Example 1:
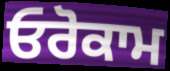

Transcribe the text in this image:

ਓਰੋਕਾਮ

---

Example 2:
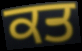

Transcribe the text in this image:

ਕਤ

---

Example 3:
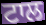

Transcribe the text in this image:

ਟਾਲ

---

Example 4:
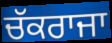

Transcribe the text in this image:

ਚੱਕਰਾਜਾ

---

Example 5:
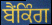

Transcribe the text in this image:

ਬੈਂਕਿੰਗ